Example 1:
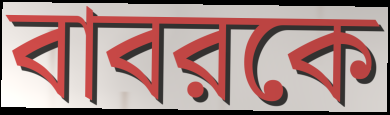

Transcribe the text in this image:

বাবরকে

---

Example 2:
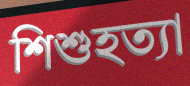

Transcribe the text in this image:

শিশুহত্যা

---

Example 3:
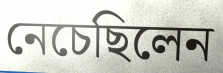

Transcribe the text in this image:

নেচেছিলেন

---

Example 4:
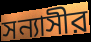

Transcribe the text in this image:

সন্যাসীর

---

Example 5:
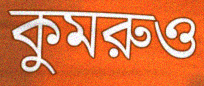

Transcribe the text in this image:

কুমরুও